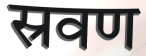
स्रवण